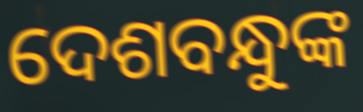
ଦେଶବନ୍ଧୁଙ୍କ